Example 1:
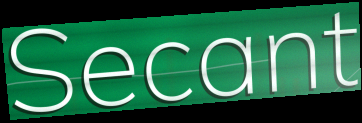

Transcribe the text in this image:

Secant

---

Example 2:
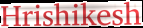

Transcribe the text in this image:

Hrishikesh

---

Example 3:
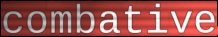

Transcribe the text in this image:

combative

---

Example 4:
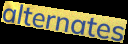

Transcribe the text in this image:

alternates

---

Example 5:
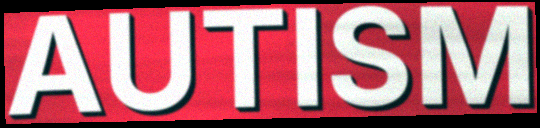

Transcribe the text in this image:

AUTISM